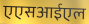
एएसआईएल